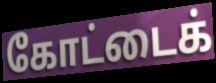
கோட்டைக்